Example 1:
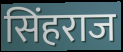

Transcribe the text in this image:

सिंहराज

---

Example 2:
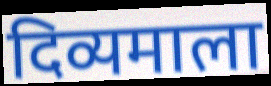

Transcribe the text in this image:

दिव्यमाला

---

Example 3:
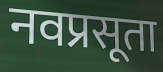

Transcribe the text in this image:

नवप्रसूता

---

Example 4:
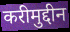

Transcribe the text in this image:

करीमुद्दीन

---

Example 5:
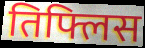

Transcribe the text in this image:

तिफ्लिस